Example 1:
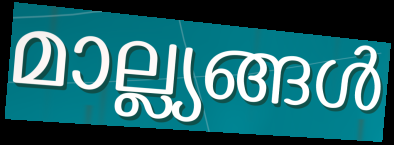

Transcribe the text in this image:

മാല്ല്യങ്ങൾ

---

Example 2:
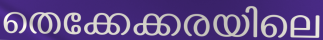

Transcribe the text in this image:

തെക്കേക്കരയിലെ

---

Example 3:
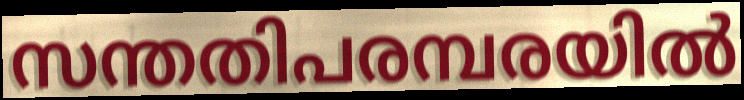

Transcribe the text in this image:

സന്തതിപരമ്പരയിൽ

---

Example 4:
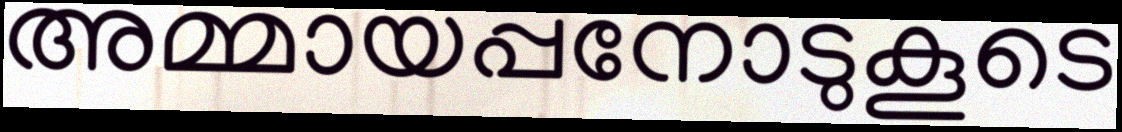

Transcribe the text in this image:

അമ്മായപ്പനോടുകൂടെ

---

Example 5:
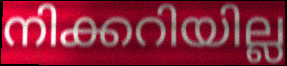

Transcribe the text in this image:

നിക്കറിയില്ല